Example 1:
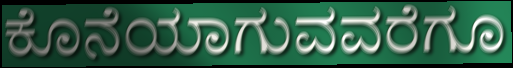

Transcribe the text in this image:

ಕೊನೆಯಾಗುವವರೆಗೂ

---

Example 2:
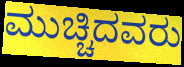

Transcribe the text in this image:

ಮುಚ್ಚಿದವರು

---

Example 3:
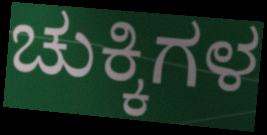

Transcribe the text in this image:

ಚುಕ್ಕಿಗಳ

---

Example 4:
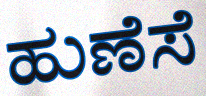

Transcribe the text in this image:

ಹುಣೆಸೆ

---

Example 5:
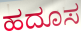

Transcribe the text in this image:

ಹದೂಸ